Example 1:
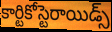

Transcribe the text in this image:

కార్టికోస్టెరాయిడ్స్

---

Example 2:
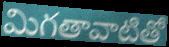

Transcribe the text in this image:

మిగతావాటితో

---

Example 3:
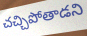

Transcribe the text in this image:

చచ్చిపోతాడని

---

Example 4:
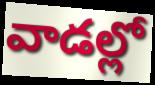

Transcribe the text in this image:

వాడల్లో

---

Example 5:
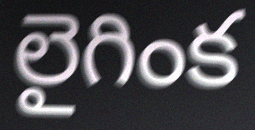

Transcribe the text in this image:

లైగింక